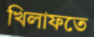
খিলাফতে